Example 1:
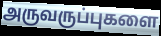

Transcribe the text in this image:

அருவருப்புகளை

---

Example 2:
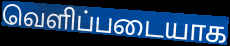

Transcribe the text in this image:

வெளிப்படையாக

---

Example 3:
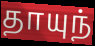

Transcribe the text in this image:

தாயுந்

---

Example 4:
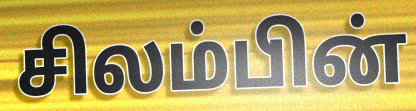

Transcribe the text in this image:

சிலம்பின்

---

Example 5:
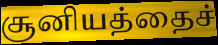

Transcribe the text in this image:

சூனியத்தைச்